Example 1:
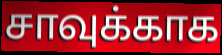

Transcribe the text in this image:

சாவுக்காக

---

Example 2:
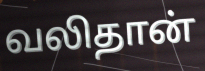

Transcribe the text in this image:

வலிதான்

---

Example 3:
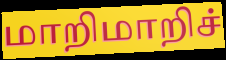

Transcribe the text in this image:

மாறிமாறிச்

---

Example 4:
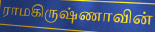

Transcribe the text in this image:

ராமகிருஷ்ணாவின்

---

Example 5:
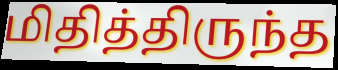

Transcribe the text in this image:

மிதித்திருந்த